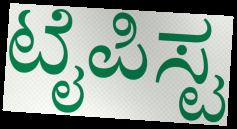
ಟೈಪಿಸ್ಟ